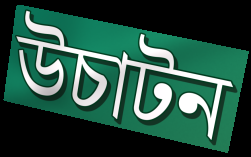
উচাটন